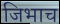
जिभाच